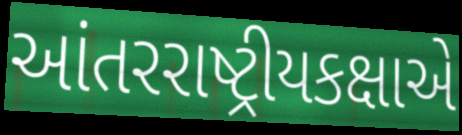
આંતરરાષ્ટ્રીયકક્ષાએ